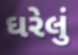
ઘરેલું